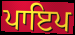
ਪਾਇਪ